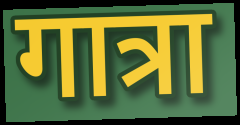
गात्रा